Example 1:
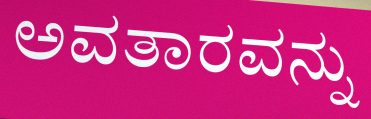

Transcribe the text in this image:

ಅವತಾರವನ್ನು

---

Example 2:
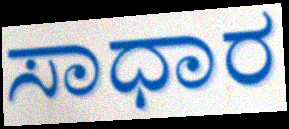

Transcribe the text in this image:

ಸಾಧಾರ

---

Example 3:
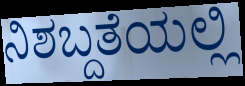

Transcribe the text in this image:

ನಿಶಬ್ದತೆಯಲ್ಲಿ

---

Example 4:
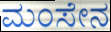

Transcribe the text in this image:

ಮಂಸೇನ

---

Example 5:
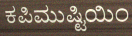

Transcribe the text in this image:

ಕಪಿಮುಷ್ಟಿಯಿಂ